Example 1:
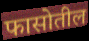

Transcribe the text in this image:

फासोतील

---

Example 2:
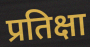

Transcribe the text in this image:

प्रतिक्षा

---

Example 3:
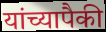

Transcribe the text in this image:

यांच्यापैकी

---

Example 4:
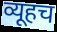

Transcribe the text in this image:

व्यूहच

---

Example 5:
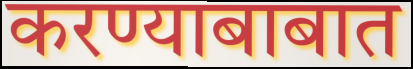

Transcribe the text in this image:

करण्याबाबात